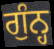
ਗੁੰਨ੍ਹ